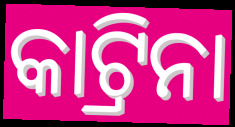
କାଟ୍ରିନା